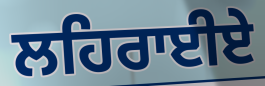
ਲਹਿਰਾਈਏ